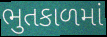
ભુતકાળમાં